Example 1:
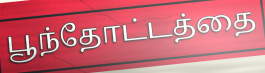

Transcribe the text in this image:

பூந்தோட்டத்தை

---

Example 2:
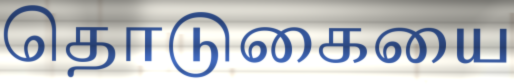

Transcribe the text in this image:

தொடுகையை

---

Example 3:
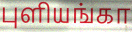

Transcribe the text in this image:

புளியங்கா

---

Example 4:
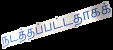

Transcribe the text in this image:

நடத்தப்பட்டதாகக்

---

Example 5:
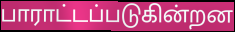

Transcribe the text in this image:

பாராட்டப்படுகின்றன